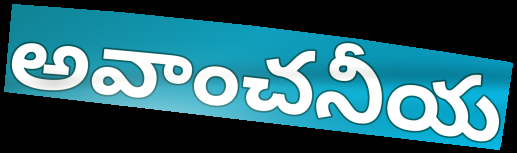
అవాంచనీయ